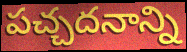
పచ్చదనాన్ని